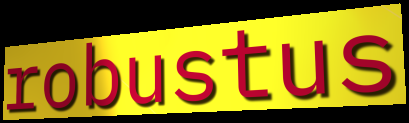
robustus